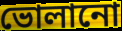
ভোলানো